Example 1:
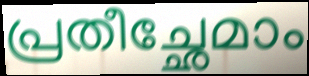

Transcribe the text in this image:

പ്രതീച്ഛേമാം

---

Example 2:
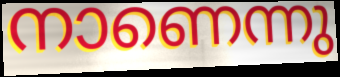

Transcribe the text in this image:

നാണെന്നു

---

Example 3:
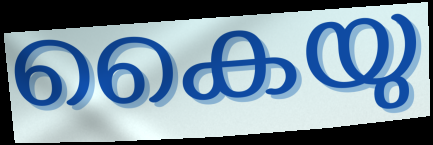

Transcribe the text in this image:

കൈയു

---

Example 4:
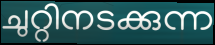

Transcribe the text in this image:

ചുറ്റിനടക്കുന്ന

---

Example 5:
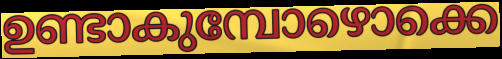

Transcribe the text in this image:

ഉണ്ടാകുമ്പോഴൊക്കെ